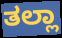
ತಲ್ಲಾ